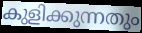
കുളിക്കുന്നതും